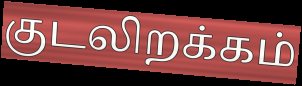
குடலிறக்கம்